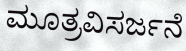
ಮೂತ್ರವಿಸರ್ಜನೆ